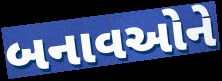
બનાવઓને